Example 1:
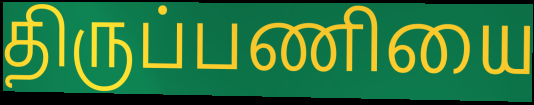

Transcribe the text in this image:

திருப்பணியை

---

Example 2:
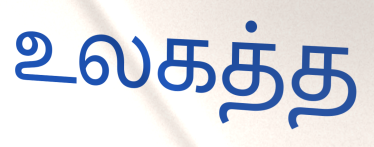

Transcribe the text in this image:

உலகத்த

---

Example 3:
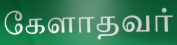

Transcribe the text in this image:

கேளாதவர்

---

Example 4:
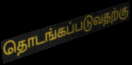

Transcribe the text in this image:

தொடங்கப்படுவதற்கு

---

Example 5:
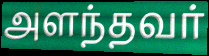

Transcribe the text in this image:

அளந்தவர்